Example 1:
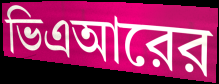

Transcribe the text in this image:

ভিএআরের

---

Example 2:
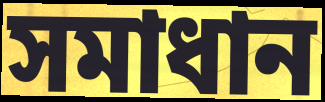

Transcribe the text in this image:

সমাধান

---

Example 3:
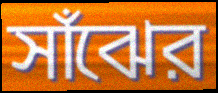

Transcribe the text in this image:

সাঁঝের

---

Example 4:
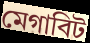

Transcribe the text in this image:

মেগাবিট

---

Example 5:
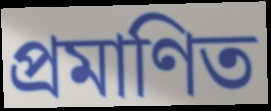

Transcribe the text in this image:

প্রমাণিত